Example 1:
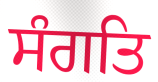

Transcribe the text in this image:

ਸੰਗਤਿ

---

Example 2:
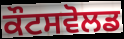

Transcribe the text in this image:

ਕੌਟਸਵੋਲਡ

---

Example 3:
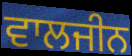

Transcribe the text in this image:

ਵਾਲਜੀਨ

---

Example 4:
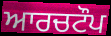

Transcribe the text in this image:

ਆਰਚਟੌਪ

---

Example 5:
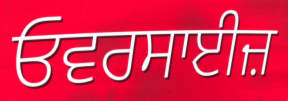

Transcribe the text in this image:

ਓਵਰਸਾਈਜ਼